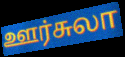
ஊர்சுலா